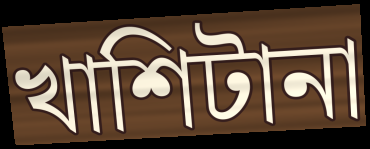
খাশিটানা